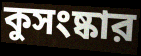
কুসংষ্কার